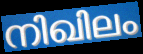
നിഖിലം